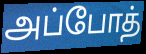
அப்போத்